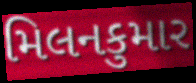
મિલનકુમાર